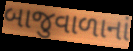
બાજુવાળાનાં